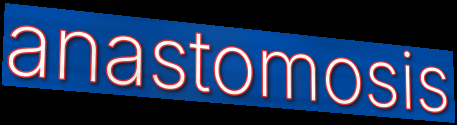
anastomosis